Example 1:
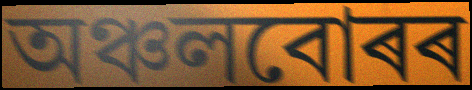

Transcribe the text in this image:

অঞ্চলবোৰৰ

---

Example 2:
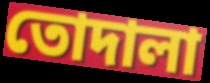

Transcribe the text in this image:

তোদালা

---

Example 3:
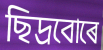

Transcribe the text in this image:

ছিদ্ৰবোৰে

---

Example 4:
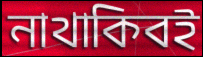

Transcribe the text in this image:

নাথাকিবই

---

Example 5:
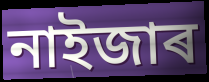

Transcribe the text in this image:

নাইজাৰ